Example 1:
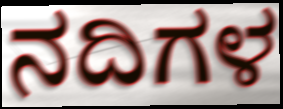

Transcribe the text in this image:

ನದಿಗಳ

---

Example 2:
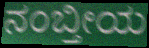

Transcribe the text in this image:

ನಂಬ್ತೀಯ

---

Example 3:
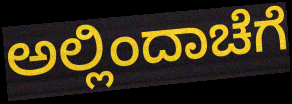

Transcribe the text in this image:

ಅಲ್ಲಿಂದಾಚೆಗೆ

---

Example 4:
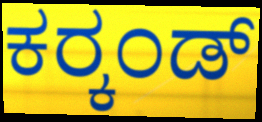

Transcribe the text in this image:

ಕರ್‍ಕಂಡ್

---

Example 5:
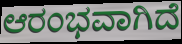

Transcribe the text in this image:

ಆರಂಭವಾಗಿದೆ